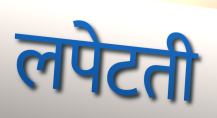
लपेटती